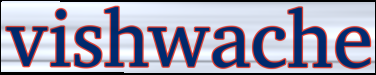
vishwache